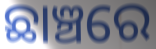
ଛାଞ୍ଚରେ